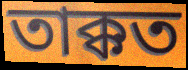
তাক্কত